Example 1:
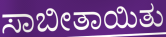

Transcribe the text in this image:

ಸಾಬೀತಾಯಿತು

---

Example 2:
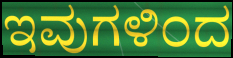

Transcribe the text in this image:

ಇವುಗಳಿಂದ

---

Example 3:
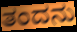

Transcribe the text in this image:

ತಂದನು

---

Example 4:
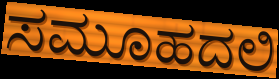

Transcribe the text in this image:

ಸಮೂಹದಲಿ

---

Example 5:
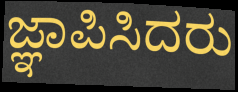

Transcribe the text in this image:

ಜ್ಞಾಪಿಸಿದರು